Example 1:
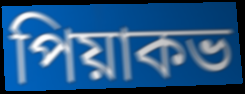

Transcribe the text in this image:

পিয়াকভ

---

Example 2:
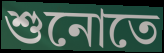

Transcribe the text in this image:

শুনোতে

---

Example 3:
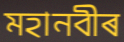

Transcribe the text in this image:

মহানবীৰ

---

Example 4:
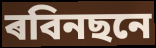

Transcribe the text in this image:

ৰবিনছনে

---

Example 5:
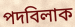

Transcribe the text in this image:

পদবিলাক